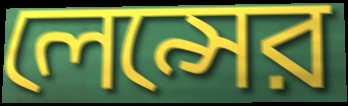
লেন্সের